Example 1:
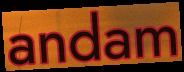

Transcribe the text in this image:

andam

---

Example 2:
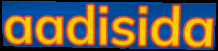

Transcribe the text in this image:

aadisida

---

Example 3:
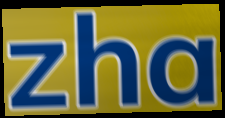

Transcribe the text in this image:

zha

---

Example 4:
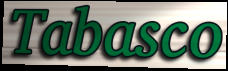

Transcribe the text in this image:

Tabasco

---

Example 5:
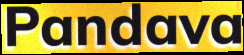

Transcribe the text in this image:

Pandava